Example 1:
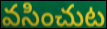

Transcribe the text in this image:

వసించుట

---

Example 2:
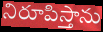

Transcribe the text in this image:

నిరూపిస్తాను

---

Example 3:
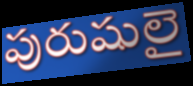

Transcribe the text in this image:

పురుషులై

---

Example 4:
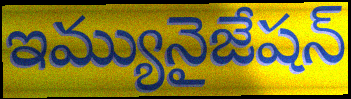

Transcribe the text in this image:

ఇమ్యునైజేషన్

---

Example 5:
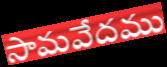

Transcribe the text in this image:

సామవేదము